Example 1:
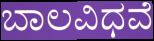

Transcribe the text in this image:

ಬಾಲವಿಧವೆ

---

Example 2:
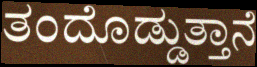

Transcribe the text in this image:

ತಂದೊಡ್ಡುತ್ತಾನೆ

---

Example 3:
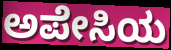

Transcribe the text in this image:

ಅಪೇಸಿಯ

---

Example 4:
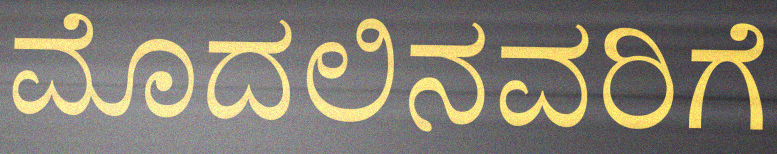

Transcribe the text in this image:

ಮೊದಲಿನವರಿಗೆ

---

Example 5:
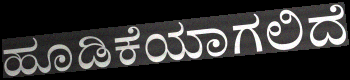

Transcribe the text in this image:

ಹೂಡಿಕೆಯಾಗಲಿದೆ